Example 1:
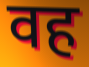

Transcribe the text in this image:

वह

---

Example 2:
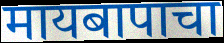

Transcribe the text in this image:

मायबापाचा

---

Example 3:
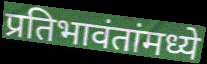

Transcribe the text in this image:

प्रतिभावंतांमध्ये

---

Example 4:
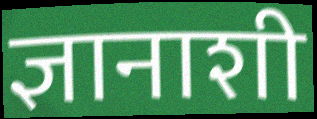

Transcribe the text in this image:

ज्ञानाशी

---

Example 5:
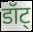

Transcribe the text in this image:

डॉट्